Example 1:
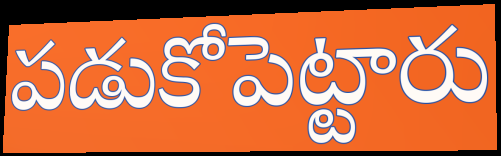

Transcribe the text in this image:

పడుకోపెట్టారు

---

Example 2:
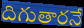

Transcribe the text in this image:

దిగుతారనే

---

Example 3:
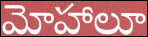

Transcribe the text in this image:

మోహాలూ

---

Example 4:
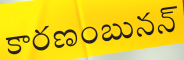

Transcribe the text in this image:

కారణంబునన్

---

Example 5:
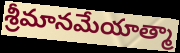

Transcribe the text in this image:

శ్రీమానమేయాత్మా